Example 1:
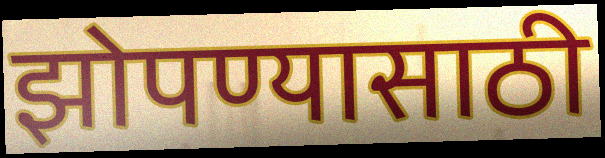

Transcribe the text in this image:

झोपण्यासाठी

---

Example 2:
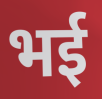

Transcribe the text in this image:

भई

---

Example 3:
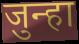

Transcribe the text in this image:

जुन्हा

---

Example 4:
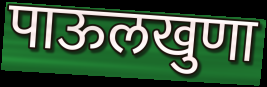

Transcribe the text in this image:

पाऊलखुणा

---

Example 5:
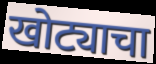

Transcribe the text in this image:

खोट्याचा